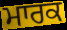
ਮਾਰਕ